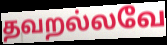
தவறல்லவே